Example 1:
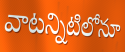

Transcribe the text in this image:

వాటన్నిటిలోనూ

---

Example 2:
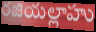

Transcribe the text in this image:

రజియల్లాహు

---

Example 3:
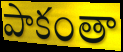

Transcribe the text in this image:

పాకంతా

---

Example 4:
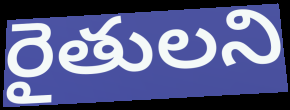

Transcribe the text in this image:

రైతులని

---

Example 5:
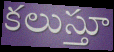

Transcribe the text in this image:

కలుస్తూ